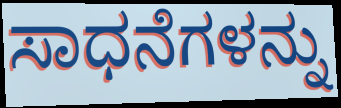
ಸಾಧನೆಗಳನ್ನು